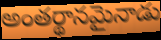
అంతర్థానమైనాడు